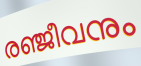
രഞ്ജീവനും